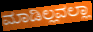
ಮಾಡಿಲ್ಲವಲ್ಲಾ